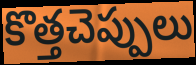
కొత్తచెప్పులు